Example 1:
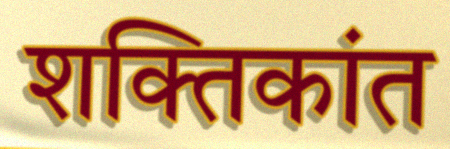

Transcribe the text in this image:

शक्तिकांत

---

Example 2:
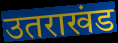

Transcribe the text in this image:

उतराखंड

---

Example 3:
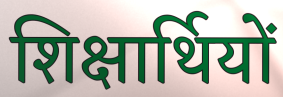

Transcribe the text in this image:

शिक्षार्थियों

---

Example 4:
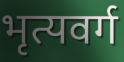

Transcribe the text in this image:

भृत्यवर्ग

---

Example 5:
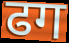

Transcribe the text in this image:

ढग